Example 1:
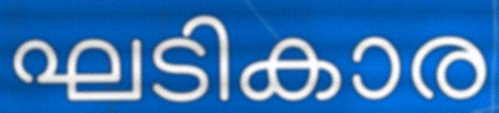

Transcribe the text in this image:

ഘടികാര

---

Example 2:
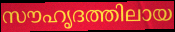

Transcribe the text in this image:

സൗഹൃദത്തിലായ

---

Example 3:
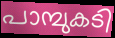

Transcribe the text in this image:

പാമ്പുകടി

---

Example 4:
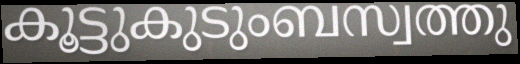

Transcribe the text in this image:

കൂട്ടുകുടുംബസ്വത്തു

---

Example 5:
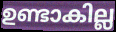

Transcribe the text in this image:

ഉണ്ടാകില്ല